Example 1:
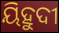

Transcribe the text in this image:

ୟିହୁଦୀ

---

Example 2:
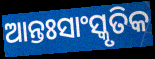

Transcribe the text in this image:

ଆନ୍ତଃସାଂସ୍କୃତିକ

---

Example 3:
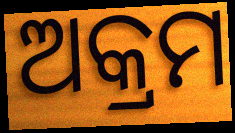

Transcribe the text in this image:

ଅକ୍ରମ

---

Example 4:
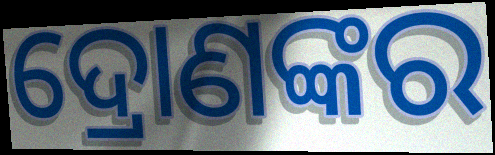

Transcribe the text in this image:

ଦ୍ରୋଣଙ୍କର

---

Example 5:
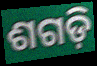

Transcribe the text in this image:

ଶଗଡ଼ି